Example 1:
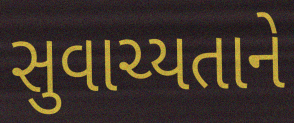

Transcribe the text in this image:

સુવાચ્યતાને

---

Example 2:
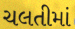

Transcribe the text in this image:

ચલતીમાં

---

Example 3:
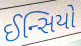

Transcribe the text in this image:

ઈન્સિયો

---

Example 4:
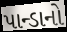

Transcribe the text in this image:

પાન્ડાનો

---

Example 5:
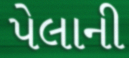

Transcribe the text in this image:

પેલાની